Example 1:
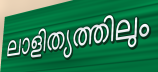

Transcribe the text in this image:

ലാളിത്യത്തിലും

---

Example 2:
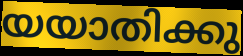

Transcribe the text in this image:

യയാതിക്കു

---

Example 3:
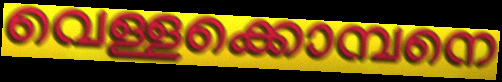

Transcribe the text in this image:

വെള്ളക്കൊമ്പനെ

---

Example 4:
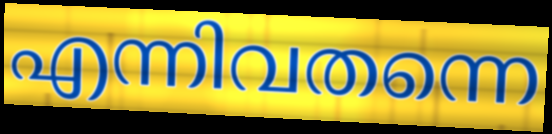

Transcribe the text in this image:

എന്നിവതന്നെ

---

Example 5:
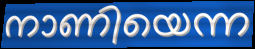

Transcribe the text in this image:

നാണിയെന്ന